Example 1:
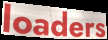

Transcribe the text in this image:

loaders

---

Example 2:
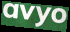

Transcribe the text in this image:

avyo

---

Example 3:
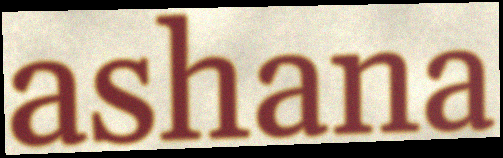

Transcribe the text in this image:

ashana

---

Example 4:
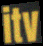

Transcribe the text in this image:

itv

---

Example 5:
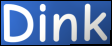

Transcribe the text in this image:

Dink